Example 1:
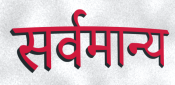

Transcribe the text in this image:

सर्वमान्य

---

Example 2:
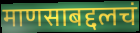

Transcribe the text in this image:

माणसाबद्दलचं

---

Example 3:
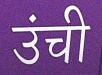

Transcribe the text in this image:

उंची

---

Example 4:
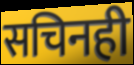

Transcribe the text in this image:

सचिनही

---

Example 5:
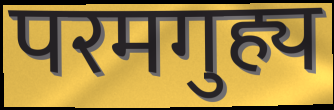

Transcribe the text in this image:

परमगुह्य